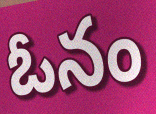
ఓనం